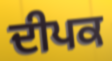
ਦੀਪਕ